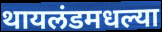
थायलंडमधल्या